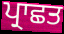
ਪ੍ਰਾਛਤ